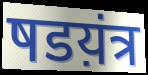
षडय़ंत्र